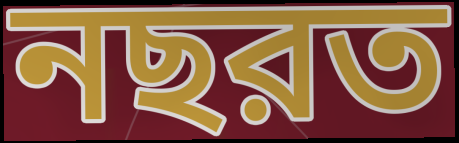
নছরত